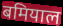
बमियाल